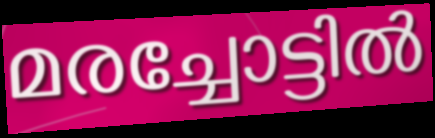
മരച്ചോട്ടിൽ